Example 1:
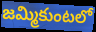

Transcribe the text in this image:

జమ్మికుంటలో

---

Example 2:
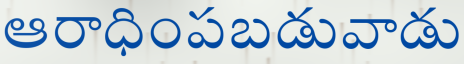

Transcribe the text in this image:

ఆరాధింపబడువాడు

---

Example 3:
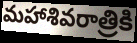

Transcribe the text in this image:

మహాశివరాత్రికి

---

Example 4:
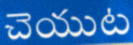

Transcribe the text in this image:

చెయుట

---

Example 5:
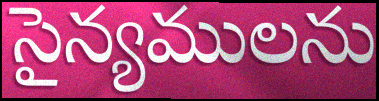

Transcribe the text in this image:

సైన్యములను